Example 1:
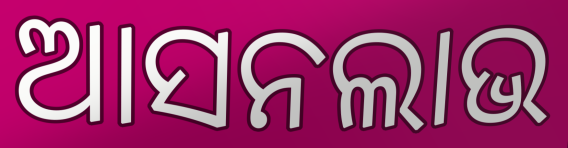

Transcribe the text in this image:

ଆସନଲାଭ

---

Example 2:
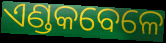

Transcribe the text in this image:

ଏଣ୍ଡକବେଳେ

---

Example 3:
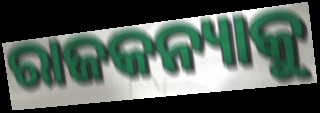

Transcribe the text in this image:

ରାଜକନ୍ୟାକୁ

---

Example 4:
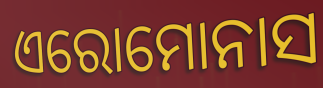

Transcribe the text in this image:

ଏରୋମୋନାସ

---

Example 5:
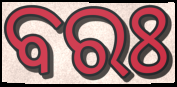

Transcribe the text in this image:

ବରଃ